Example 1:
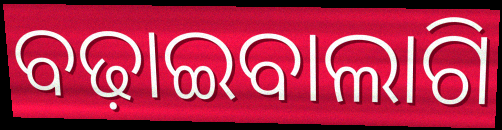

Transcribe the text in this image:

ବଢ଼ାଇବାଲାଗି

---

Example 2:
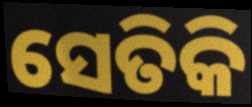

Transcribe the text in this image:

ସେତିକି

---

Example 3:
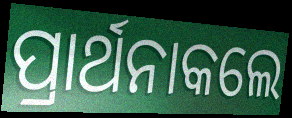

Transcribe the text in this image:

ପ୍ରାର୍ଥନାକଲେ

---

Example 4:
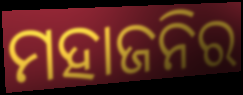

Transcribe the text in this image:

ମହାଜନିର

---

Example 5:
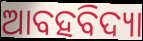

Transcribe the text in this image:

ଆବହବିଦ୍ୟା